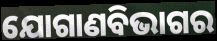
ଯୋଗାଣବିଭାଗର